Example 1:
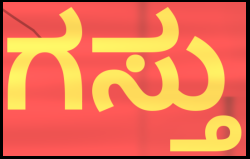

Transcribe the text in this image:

ಗಸ್ತು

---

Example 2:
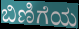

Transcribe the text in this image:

ಬಿಣಿಗೆಯ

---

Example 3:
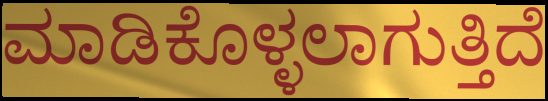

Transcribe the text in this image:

ಮಾಡಿಕೊಳ್ಳಲಾಗುತ್ತಿದೆ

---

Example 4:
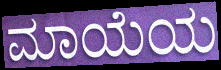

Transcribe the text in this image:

ಮಾಯೆಯ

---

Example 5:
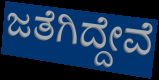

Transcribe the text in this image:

ಜತೆಗಿದ್ದೇವೆ